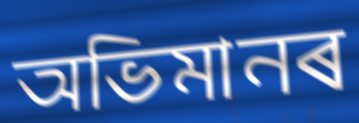
অভিমানৰ